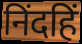
निंदहिं